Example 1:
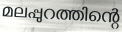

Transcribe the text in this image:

മലപ്പുറത്തിന്റെ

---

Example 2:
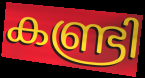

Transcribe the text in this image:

കണ്ട്രി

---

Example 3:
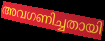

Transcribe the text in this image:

അവഗണിച്ചതായി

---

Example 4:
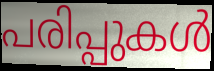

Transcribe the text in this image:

പരിപ്പുകൾ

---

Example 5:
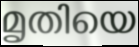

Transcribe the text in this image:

മൃതിയെ